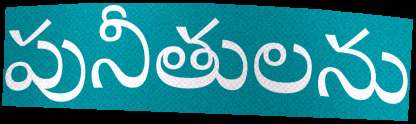
పునీతులను